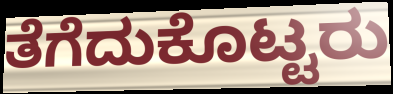
ತೆಗೆದುಕೊಟ್ಟರು